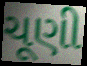
ચૂણી